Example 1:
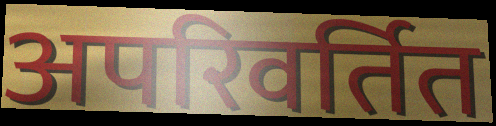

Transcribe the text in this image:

अपरिवर्तित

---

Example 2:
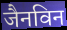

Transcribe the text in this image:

जैनविन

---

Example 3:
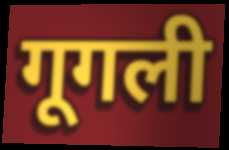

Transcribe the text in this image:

गूगली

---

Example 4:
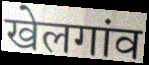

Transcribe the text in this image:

खेलगांव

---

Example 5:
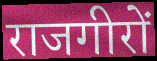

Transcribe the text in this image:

राजगीरों